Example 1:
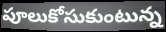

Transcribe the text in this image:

పూలుకోసుకుంటున్న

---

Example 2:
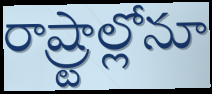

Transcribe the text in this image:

రాష్ర్టాల్లోనూ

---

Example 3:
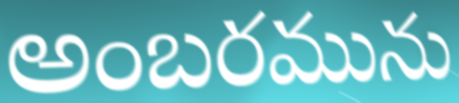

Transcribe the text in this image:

అంబరమును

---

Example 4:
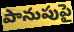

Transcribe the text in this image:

పానుపుపై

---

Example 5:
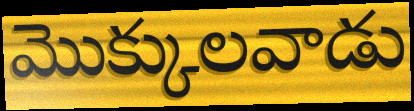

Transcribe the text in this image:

మొక్కులవాడు